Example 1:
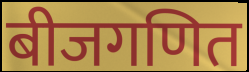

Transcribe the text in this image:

बीजगणित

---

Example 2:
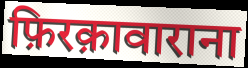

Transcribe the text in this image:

फ़िरक़ावाराना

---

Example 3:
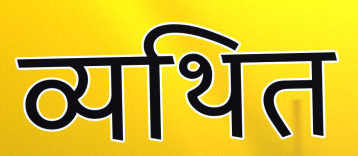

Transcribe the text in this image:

व्यथित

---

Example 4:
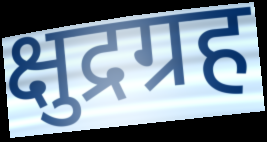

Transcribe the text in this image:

क्षुद्रग्रह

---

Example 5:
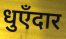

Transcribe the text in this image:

धुएँदार